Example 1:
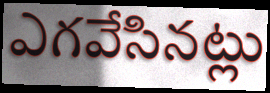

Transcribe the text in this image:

ఎగవేసినట్లు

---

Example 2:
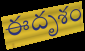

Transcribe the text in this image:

ఈదృశం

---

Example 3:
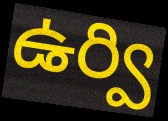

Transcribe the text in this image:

ఉర్వి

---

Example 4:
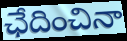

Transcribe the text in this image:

ఛేదించినా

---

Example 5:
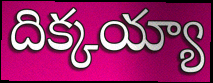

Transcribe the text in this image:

దిక్కయ్యా